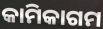
କାମିକାଗମ